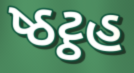
ષ્ઠટ્ઠહ